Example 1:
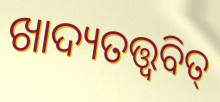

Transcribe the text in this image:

ଖାଦ୍ୟତତ୍ତ୍ୱବିତ୍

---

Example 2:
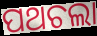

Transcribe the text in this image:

ପଥଚଲା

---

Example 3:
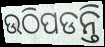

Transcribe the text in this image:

ଉଠିପଡନ୍ତି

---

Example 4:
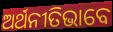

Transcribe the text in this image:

ଅର୍ଥନୀତିଭାବେ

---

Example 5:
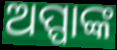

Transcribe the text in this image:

ଅପ୍ପାଙ୍କ